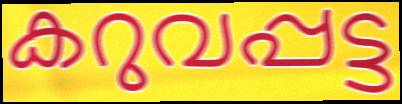
കറുവപ്പട്ട